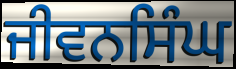
ਜੀਵਨਸਿੰਘ